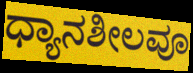
ಧ್ಯಾನಶೀಲವೂ